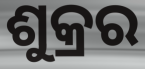
ଶୁକ୍ରର